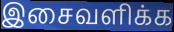
இசைவளிக்க